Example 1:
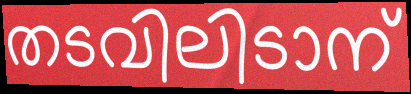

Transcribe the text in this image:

തടവിലിടാന്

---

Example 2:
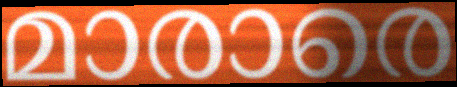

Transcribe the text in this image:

മാരാരെ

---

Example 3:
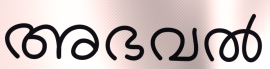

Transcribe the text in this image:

അഭവൽ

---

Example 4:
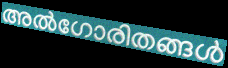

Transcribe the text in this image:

അൽഗോരിതങ്ങൾ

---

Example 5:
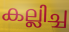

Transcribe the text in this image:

കല്ലിച്ച